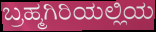
ಬ್ರಹ್ಮಗಿರಿಯಲ್ಲಿಯ